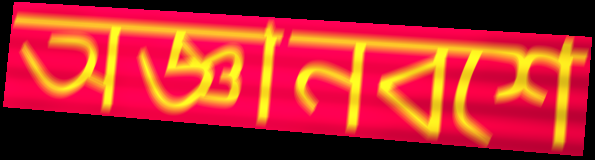
অজ্ঞানবশে